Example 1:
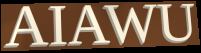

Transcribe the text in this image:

AIAWU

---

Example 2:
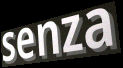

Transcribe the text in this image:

senza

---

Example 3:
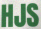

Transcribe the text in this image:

HJS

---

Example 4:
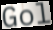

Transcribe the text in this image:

Gol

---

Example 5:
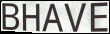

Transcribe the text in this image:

BHAVE